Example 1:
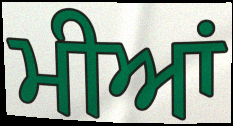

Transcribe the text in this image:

ਮੀਆਂ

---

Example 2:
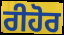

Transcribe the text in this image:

ਰੀਹੋਰ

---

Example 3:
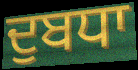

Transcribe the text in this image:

ਦੁਬਧਾ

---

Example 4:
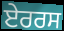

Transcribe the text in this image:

ਏਰਰਸ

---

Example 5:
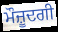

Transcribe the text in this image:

ਮੌਜ਼ੂਦਗੀ